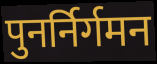
पुनर्निर्गमन